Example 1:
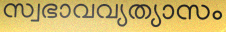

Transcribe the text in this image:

സ്വഭാവവ്യത്യാസം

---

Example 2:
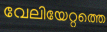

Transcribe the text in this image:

വേലിയേറ്റത്തെ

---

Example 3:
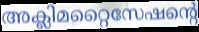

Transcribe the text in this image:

അക്ലിമറ്റൈസേഷന്റെ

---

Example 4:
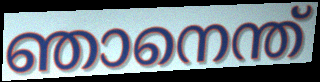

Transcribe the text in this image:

ഞാനെന്ത്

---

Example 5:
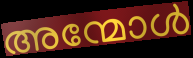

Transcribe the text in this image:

അന്മോൾ